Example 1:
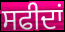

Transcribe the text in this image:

ਸਫੀਦਾਂ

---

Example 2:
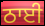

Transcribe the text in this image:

ਠਾਈ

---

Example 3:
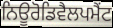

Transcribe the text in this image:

ਨਿਊਰੋਡਿਵੈਲਪਮੈਂਟ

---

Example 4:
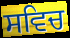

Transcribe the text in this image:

ਸਵਿਚ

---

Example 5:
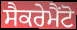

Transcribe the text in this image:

ਸੈਕਰੇਮੈਂਟੋ